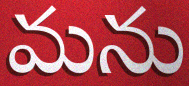
మను